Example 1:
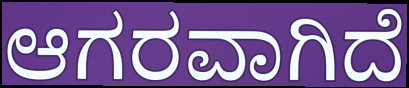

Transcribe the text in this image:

ಆಗರವಾಗಿದೆ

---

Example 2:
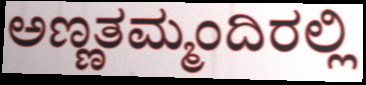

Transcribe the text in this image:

ಅಣ್ಣತಮ್ಮಂದಿರಲ್ಲಿ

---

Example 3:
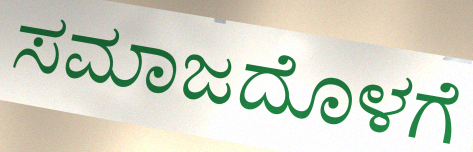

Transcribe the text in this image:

ಸಮಾಜದೊಳಗೆ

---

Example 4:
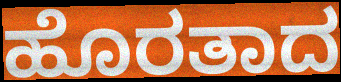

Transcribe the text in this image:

ಹೊರತಾದ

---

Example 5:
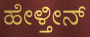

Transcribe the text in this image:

ಹೇಳ್ತೀನ್